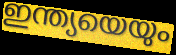
ഇന്ത്യയെയും